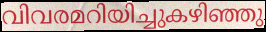
വിവരമറിയിച്ചുകഴിഞ്ഞു